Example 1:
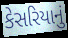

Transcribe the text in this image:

કેસરિયાનું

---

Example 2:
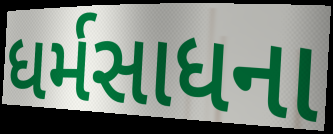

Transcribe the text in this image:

ધર્મસાધના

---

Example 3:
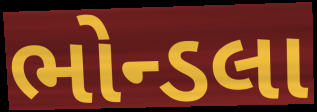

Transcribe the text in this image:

ભોન્ડલા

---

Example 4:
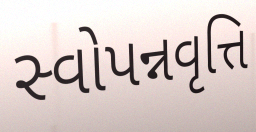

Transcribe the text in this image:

સ્વોપન્નવૃત્તિ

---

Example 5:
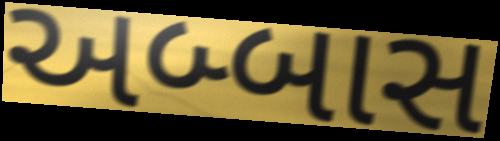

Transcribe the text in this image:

અબ્બાસ